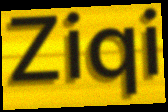
Ziqi